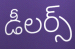
డీలర్స్